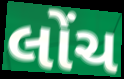
લોંચ